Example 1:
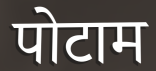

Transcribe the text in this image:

पोटाम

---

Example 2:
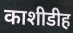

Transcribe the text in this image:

काशीडीह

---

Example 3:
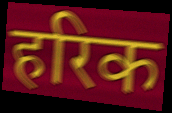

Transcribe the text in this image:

हरिक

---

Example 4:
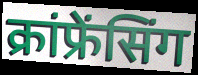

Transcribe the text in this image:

क्रांफ्रेंसिंग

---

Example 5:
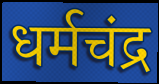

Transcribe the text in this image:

धर्मचंद्र